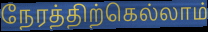
நேரத்திற்கெல்லாம்